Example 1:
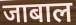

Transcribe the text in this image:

जाबाल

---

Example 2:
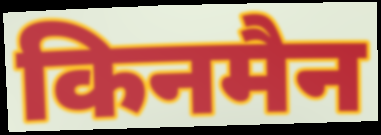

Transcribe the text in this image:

किनमैन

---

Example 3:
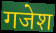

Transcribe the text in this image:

गजेश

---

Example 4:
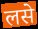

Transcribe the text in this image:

लसे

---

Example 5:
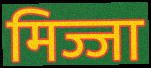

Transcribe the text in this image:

मिज्जा